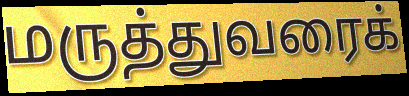
மருத்துவரைக்